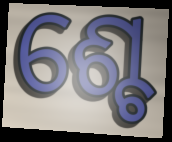
ଶ୍ଚେ